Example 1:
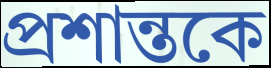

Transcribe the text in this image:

প্রশান্তকে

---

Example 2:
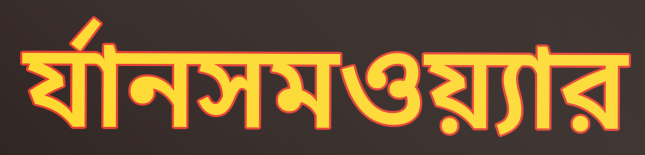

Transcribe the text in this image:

র্যানসমওয়্যার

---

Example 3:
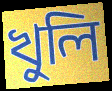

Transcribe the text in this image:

খুলি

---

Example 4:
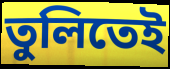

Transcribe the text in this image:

তুলিতেই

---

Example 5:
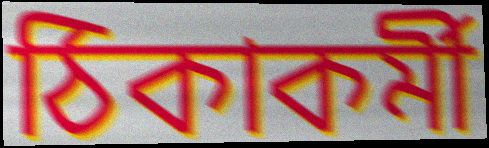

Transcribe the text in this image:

ঠিকাকর্মী